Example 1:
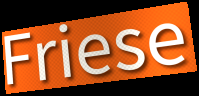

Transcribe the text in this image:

Friese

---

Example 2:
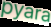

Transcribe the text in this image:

pyara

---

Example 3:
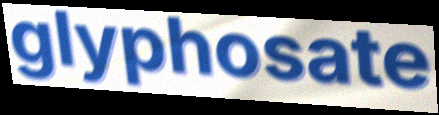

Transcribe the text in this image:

glyphosate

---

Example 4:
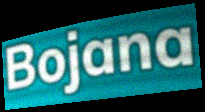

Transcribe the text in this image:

Bojana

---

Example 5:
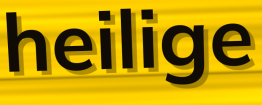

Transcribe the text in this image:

heilige